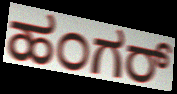
ಹಂಗರ್